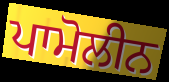
ਪਾਮੋਲੀਨ